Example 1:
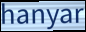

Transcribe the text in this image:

hanyar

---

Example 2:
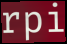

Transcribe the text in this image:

rpi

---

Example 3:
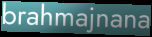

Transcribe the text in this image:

brahmajnana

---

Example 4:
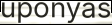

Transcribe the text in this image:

uponyas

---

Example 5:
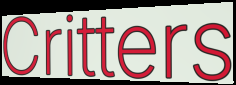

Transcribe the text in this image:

Critters